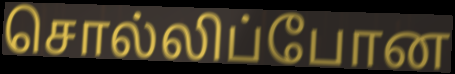
சொல்லிப்போன